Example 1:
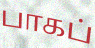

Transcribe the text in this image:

பாகப்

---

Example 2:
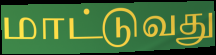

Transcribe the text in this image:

மாட்டுவது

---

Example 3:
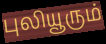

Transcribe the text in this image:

புலியூரும்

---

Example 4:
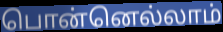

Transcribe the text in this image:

பொன்னெல்லாம்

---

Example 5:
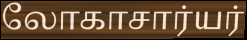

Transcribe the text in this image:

லோகாசார்யர்